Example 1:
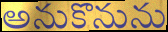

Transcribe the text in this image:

అనుకొనును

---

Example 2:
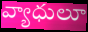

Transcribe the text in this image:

వ్యాధులూ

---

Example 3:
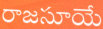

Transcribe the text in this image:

రాజసూయే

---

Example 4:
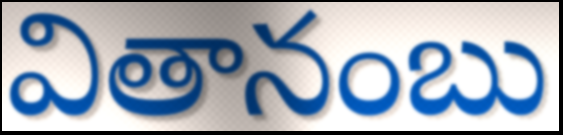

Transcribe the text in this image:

వితానంబు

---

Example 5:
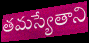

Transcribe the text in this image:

తమస్యేతాని